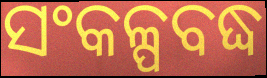
ସଂକଳ୍ପବଦ୍ଧ